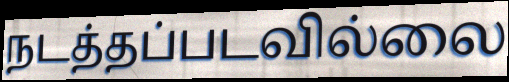
நடத்தப்படவில்லை